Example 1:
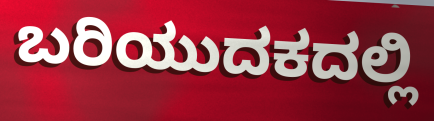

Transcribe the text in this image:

ಬರಿಯುದಕದಲ್ಲಿ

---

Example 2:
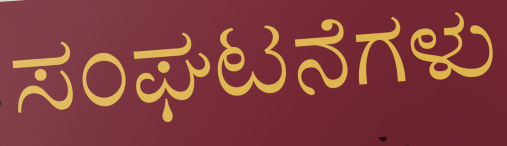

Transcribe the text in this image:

ಸಂಘಟನೆಗಳು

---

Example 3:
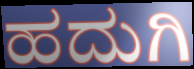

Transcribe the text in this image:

ಹದುಗಿ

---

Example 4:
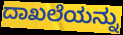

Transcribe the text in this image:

ದಾಖಲೆಯನ್ನು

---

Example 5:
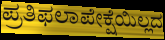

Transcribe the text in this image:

ಪ್ರತಿಫಲಾಪೇಕ್ಷೆಯಿಲ್ಲದ